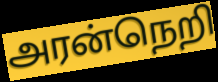
அரன்நெறி